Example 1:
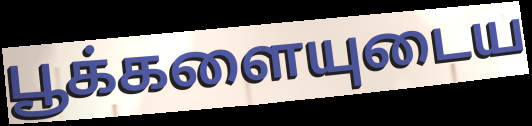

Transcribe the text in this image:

பூக்களையுடைய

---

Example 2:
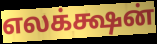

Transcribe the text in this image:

எலக்க்ஷன்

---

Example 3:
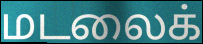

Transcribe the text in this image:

மடலைக்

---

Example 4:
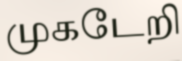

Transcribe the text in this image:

முகடேறி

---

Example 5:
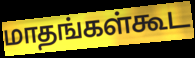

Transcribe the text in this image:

மாதங்கள்கூட